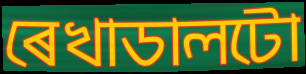
ৰেখাডালটো